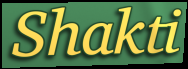
Shakti